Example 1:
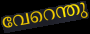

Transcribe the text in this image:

വേറെന്തു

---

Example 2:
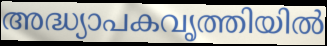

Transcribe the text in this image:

അദ്ധ്യാപകവൃത്തിയിൽ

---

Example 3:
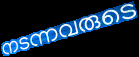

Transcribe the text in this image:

നടന്നവരുടെ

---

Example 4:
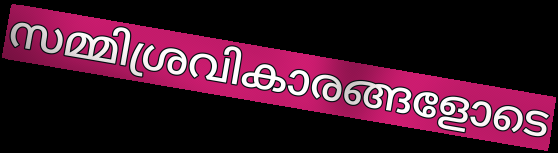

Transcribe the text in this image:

സമ്മിശ്രവികാരങ്ങളോടെ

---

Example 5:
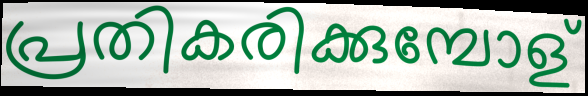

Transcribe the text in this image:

പ്രതികരിക്കുമ്പോള്